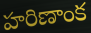
హరిణాంక